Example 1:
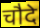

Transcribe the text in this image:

चौदे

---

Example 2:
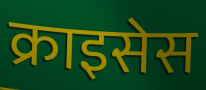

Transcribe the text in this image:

क्राइसेस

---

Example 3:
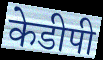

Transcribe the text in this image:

केडीपी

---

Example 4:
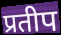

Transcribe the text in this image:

प्रतीप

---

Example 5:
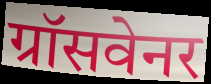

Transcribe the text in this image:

ग्रॉसवेनर